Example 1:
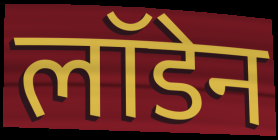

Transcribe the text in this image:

लॉडेन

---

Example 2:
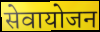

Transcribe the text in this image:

सेवायोजन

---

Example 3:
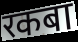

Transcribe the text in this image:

रकबा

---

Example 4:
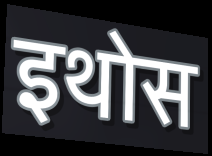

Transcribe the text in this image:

इथोस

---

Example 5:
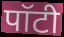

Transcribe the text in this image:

पॉटी